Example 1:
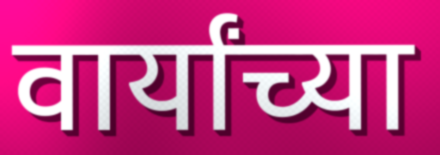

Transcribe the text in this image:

वार्यांच्या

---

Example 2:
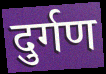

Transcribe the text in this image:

दुर्गण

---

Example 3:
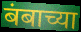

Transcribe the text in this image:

बंबाच्या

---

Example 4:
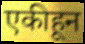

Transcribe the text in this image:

एकीहून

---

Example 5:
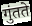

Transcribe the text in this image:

गुंतते